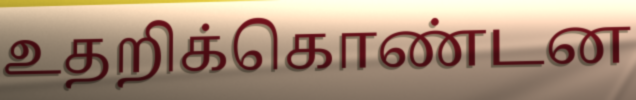
உதறிக்கொண்டன